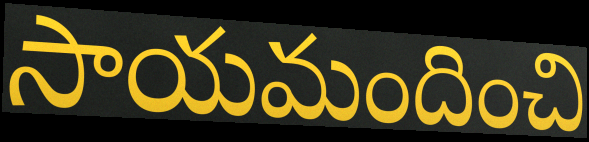
సాయమందించి